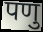
पणु